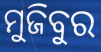
ମୁଜିବୁର